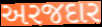
અરજદાર